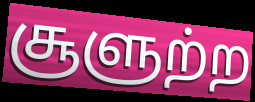
சூளுற்ற